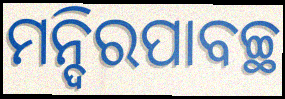
ମନ୍ଦିରପାବଚ୍ଛ